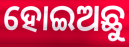
ହୋଇଅଛୁ